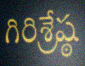
గిరిశ్రేష్ఠ